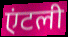
एंटली